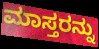
ಮಾಸ್ತರನ್ನು